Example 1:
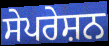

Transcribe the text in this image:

ਸੇਪਰੇਸ਼ਨ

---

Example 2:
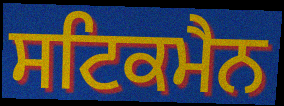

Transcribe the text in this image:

ਸਟਿਕਮੈਨ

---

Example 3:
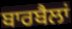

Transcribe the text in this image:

ਬਾਰਬੈਲਾਂ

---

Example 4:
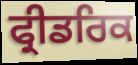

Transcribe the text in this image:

ਫ੍ਰੀਡਰਿਕ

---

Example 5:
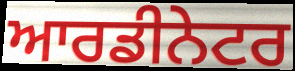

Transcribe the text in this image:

ਆਰਡੀਨੇਟਰ